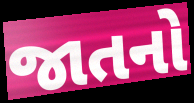
જાતનો